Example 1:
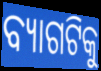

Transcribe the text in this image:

ବ୍ୟାଗଟିକୁ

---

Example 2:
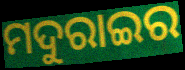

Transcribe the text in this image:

ମଦୁରାଇର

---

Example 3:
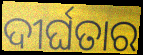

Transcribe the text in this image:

ଦୀର୍ଘତାର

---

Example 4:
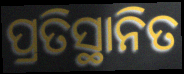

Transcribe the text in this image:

ପ୍ରତିସ୍ଥାନିତ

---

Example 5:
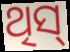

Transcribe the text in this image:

ଥିସ୍